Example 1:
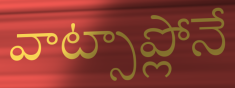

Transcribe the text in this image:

వాట్సాప్లోనే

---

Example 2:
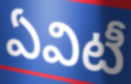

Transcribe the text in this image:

ఏవిటీ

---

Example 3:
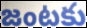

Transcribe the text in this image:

జంటకు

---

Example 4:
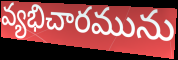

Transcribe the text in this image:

వ్యభిచారమును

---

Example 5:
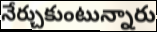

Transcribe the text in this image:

నేర్చుకుంటున్నారు